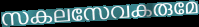
സകലസേവകരുമേ